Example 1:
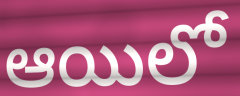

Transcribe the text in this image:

ఆయిలో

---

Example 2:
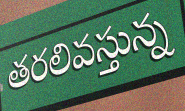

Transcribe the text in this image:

తరలివస్తున్న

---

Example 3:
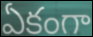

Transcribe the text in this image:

ఏకంగా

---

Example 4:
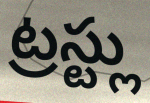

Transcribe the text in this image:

ట్రస్ట్లు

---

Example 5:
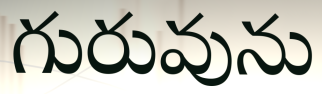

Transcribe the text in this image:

గురువును